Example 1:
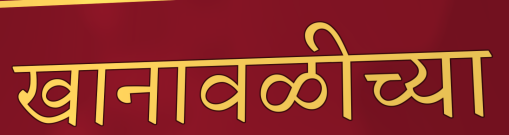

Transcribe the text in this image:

खानावळीच्या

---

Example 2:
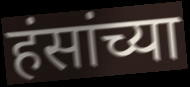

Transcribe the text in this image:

हंसांच्या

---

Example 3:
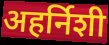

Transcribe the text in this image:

अहर्निशी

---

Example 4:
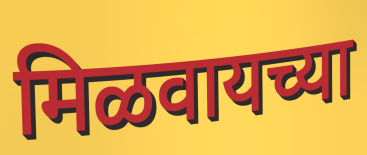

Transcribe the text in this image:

मिळवायच्या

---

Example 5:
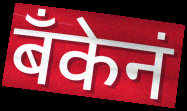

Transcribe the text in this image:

बॅंकेनं